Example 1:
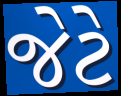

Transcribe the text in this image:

જેટે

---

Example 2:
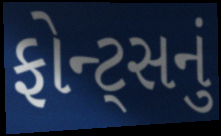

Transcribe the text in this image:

ફોન્ટ્સનું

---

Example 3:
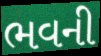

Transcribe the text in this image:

ભવની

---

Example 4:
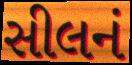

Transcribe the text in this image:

સીલનં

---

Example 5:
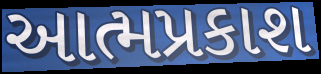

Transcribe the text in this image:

આત્મપ્રકાશ